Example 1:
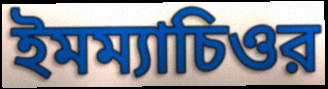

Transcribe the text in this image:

ইমম্যাচিওর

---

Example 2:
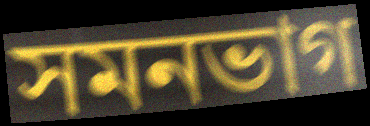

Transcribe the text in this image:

সমনভাগ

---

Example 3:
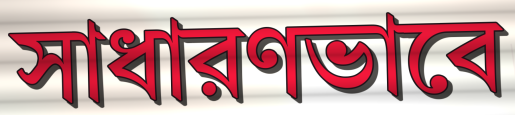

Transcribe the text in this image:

সাধারণভাবে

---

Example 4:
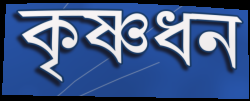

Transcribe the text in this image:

কৃষ্ণধন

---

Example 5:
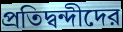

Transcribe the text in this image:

প্রতিদ্বন্দীদের